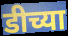
डीच्या